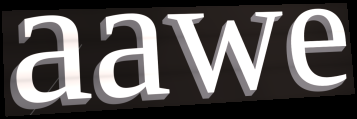
aawe